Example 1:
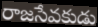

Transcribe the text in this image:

రాజసేవకుడు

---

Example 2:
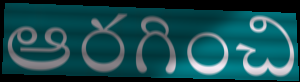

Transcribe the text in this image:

ఆరగించి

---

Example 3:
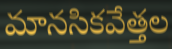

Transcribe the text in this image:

మానసికవేత్తల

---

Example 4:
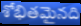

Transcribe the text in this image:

శోభితమైనది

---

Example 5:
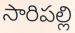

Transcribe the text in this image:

సారిపల్లి